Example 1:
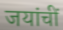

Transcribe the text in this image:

जयांचीं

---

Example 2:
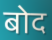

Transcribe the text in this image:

बोद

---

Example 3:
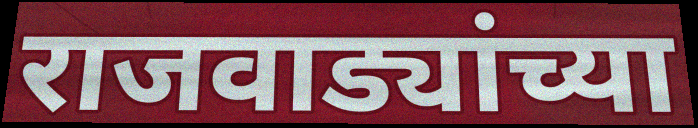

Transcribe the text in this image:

राजवाड्यांच्या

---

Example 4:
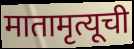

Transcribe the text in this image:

मातामृत्यूची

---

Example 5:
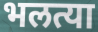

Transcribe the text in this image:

भलत्या